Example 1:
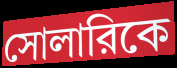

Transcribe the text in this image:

সোলারিকে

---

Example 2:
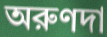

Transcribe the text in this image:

অরুণদা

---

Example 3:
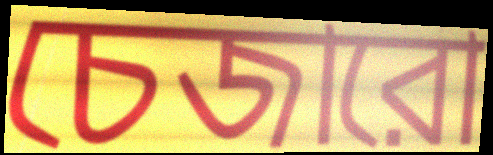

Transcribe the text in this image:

চেজারো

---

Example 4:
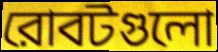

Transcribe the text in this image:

রোবটগুলো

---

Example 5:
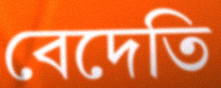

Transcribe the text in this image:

বেদেতি